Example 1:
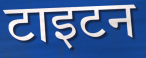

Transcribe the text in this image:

टाइटन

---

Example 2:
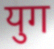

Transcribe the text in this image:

युग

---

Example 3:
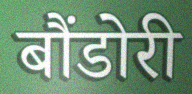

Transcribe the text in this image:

बौंडोरी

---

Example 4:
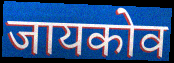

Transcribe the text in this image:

जायकोव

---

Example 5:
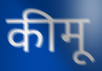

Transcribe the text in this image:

कीमू